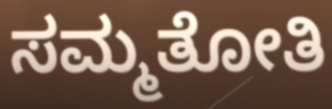
ಸಮ್ಮತೋತಿ